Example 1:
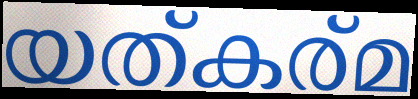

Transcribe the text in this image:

യത്കര്മ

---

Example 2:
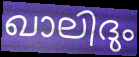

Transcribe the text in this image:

ഖാലിദും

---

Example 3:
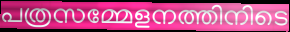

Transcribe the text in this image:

പത്രസമ്മേളനത്തിനിടെ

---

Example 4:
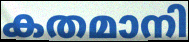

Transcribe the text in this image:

കതമാനി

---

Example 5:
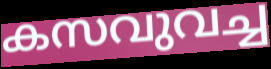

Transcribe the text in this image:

കസവുവച്ച